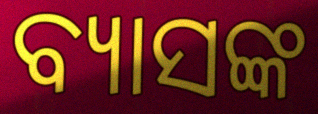
ବ୍ୟାସଙ୍କ